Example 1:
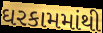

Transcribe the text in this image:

ઘરકામમાંથી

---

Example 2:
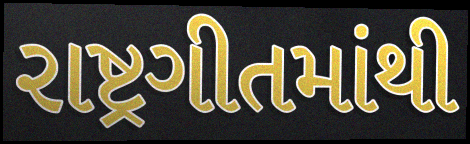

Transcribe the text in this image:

રાષ્ટ્રગીતમાંથી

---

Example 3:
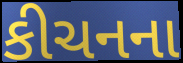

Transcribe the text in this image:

કીચનના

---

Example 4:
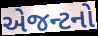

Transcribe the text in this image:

એજન્ટનો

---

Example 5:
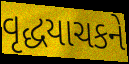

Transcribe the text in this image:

વૃદ્ધયાચકને